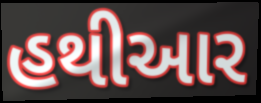
હથીઆર